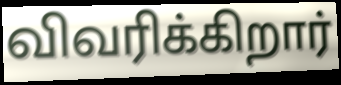
விவரிக்கிறார்